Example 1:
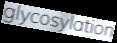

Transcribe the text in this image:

glycosylation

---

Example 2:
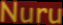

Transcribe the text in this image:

Nuru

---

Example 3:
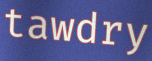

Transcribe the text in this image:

tawdry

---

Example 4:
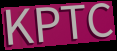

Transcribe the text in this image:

KPTC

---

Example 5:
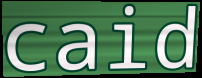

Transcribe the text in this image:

caid